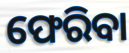
ଫେରିବା